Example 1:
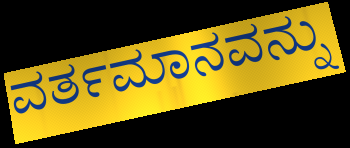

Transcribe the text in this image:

ವರ್ತಮಾನವನ್ನು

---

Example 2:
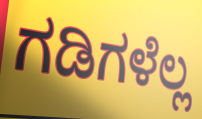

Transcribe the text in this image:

ಗಡಿಗಳೆಲ್ಲ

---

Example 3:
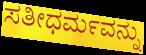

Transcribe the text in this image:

ಸತೀಧರ್ಮವನ್ನು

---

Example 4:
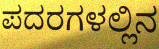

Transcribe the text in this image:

ಪದರಗಳಲ್ಲಿನ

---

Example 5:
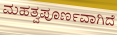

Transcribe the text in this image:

ಮಹತ್ವಪೂರ್ಣವಾಗಿದೆ